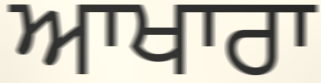
ਆਖਾਰਾ